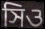
সিও